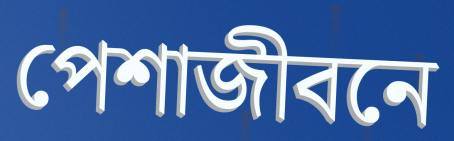
পেশাজীবনে